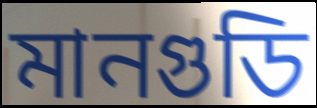
মানগুডি